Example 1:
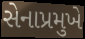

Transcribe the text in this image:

સેનાપ્રમુખે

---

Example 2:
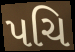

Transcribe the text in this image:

પચિ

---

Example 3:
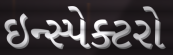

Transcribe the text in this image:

ઇન્સ્પેક્ટરો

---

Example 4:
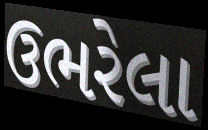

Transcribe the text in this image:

ઉભરેલા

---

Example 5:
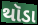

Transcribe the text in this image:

થૉડા